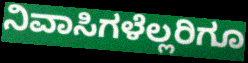
ನಿವಾಸಿಗಳೆಲ್ಲರಿಗೂ